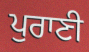
ਪੁਰਾਣੀ